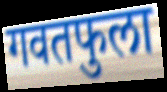
गवतफुला